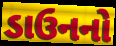
ડાઉનનો